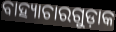
ବାହ୍ୟାଚାରଗୁଡ଼ାକ